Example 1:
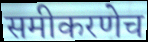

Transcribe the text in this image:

समीकरणेच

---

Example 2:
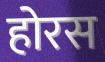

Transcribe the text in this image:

होरस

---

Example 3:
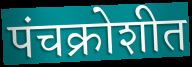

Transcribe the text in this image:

पंचक्रोशीत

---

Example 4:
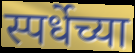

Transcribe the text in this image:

स्पर्धेच्या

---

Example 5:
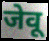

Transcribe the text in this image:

जेवू